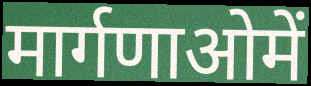
मार्गणाओमें